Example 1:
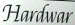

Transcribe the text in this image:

Hardwar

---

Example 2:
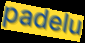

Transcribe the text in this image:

padelu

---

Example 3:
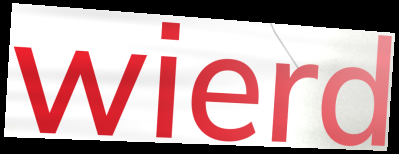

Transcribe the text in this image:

wierd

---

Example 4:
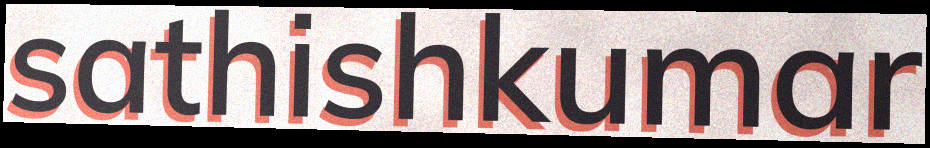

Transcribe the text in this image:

sathishkumar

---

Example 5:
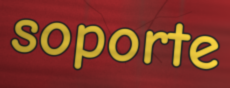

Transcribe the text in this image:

soporte